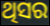
ଥିସର